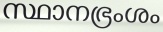
സ്ഥാനഭ്രംശം